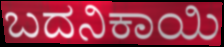
ಬದನಿಕಾಯಿ